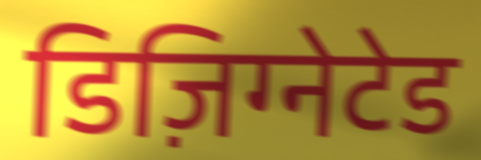
डिज़िग्नेटेड